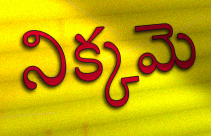
నిక్కమె